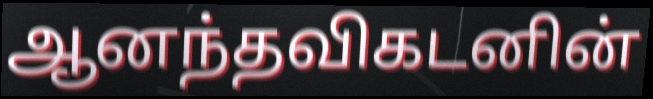
ஆனந்தவிகடனின்